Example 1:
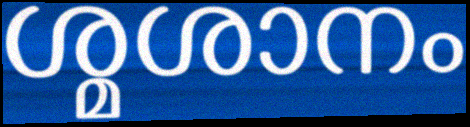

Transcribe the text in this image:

ശ്മശാനം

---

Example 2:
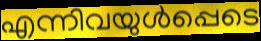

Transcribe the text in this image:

എന്നിവയുൾപ്പെടെ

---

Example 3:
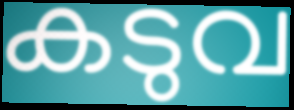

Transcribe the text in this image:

കടുവ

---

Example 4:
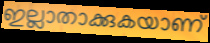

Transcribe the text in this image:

ഇല്ലാതാക്കുകയാണ്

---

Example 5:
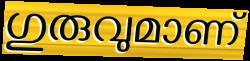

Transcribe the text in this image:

ഗുരുവുമാണ്